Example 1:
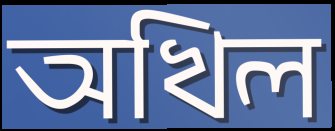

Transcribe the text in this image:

অখিল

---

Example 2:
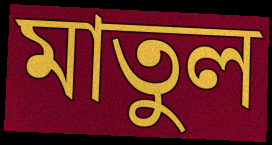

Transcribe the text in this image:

মাতুল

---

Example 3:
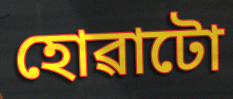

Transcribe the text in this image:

হোৱাটো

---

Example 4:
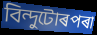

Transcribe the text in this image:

বিন্দুটোৰপৰা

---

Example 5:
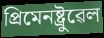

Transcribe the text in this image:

প্ৰিমেনষ্ট্ৰুৱেল